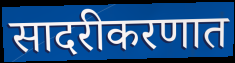
सादरीकरणात